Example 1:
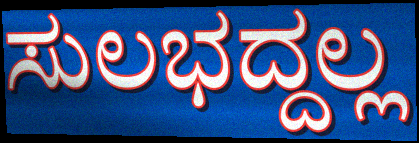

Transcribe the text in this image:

ಸುಲಭದ್ದಲ್ಲ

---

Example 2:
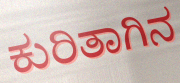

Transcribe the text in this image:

ಕುರಿತಾಗಿನ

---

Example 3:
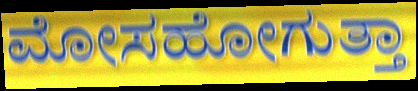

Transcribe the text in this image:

ಮೋಸಹೋಗುತ್ತಾ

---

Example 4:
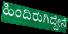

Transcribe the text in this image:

ಹಿಂದಿರುಗಿದ್ದೇನೆ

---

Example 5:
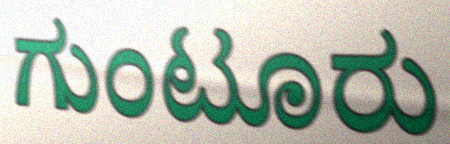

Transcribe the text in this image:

ಗುಂಟೂರು